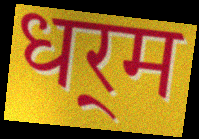
धर्म